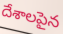
దేశాలపైన